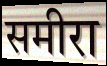
समीरा